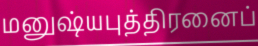
மனுஷ்யபுத்திரனைப்